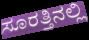
ಸೂರತ್ತಿನಲ್ಲಿ